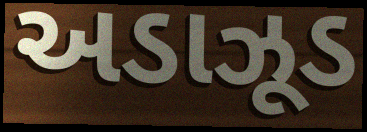
અડાઝૂડ